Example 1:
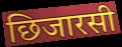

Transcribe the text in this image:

छिजारसी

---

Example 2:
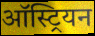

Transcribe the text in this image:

ऑस्ट्रियन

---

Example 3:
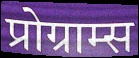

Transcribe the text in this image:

प्रोग्राम्‍स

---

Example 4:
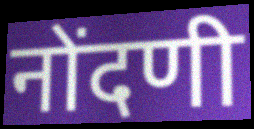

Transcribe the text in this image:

नोंदणी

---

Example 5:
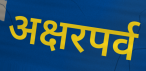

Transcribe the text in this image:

अक्षरपर्व